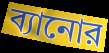
ব্যানোর